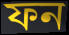
ফন